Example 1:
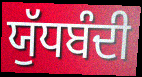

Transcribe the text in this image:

ਯੁੱਧਬੰਦੀ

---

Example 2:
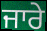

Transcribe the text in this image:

ਜਾਰੇ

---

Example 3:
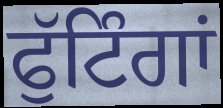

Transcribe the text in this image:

ਫੁੱਟਿੰਗਾਂ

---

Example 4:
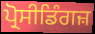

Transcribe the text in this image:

ਪ੍ਰੋਸੀਡਿੰਗਜ਼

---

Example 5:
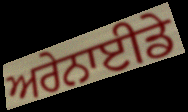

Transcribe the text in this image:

ਅਰੇਨਾਈਡੇ